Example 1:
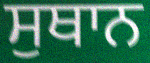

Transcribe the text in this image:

ਸੁਥਾਨ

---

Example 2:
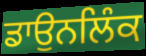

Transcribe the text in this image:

ਡਾਉਨਲਿੰਕ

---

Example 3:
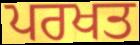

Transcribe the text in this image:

ਪਰਖਤ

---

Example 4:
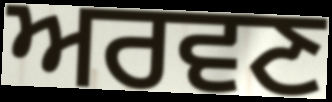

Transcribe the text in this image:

ਅਰਵਣ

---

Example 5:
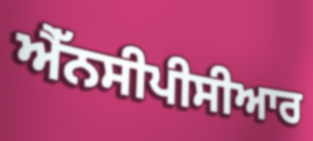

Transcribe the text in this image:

ਐੱਨਸੀਪੀਸੀਆਰ